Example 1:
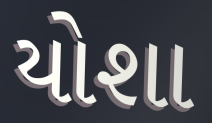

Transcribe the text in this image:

યોશા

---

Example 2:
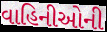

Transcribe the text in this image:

વાહિનીઓની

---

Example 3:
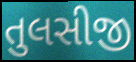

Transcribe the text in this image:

તુલસીજી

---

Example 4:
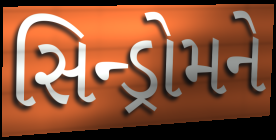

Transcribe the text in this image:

સિન્ડ્રોમને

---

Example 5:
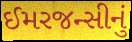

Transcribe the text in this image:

ઈમરજન્સીનું